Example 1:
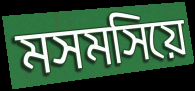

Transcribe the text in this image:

মসমসিয়ে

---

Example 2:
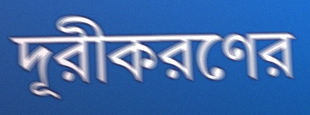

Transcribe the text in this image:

দূরীকরণের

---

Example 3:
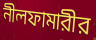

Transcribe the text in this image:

নীলফামারীর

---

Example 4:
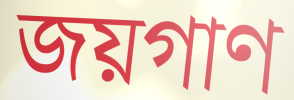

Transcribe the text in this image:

জয়গাণ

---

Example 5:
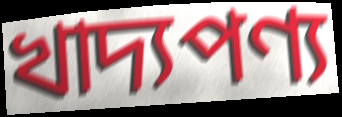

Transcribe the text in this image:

খাদ্যপণ্য